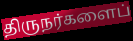
திருநர்களைப்